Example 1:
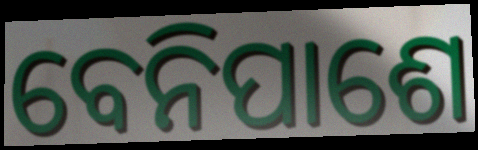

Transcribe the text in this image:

ବେନିପାଶେ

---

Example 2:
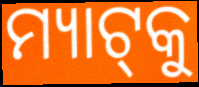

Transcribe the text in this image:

ମ୍ୟାଟ୍‌କୁ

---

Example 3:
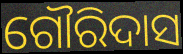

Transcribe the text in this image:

ଗୌରିଦାସ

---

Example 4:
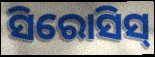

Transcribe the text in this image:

ସିରୋସିସ୍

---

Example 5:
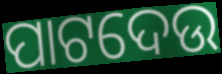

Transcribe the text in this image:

ପାଟଦେଉ